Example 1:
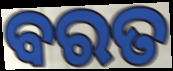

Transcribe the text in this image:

ବରତ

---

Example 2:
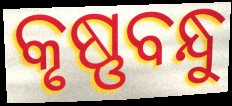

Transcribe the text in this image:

କୃଷ୍ଣବନ୍ଧୁ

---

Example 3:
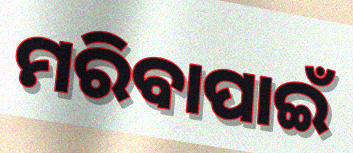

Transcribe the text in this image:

ମରିବାପାଇଁ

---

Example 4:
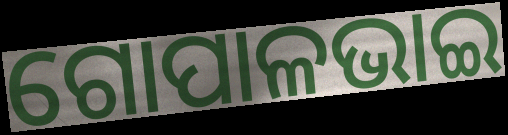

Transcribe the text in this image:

ଗୋପାଳଭାଇ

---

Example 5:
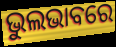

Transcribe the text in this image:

ଭୁଲଭାବରେ